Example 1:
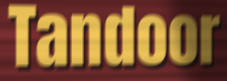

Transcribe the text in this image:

Tandoor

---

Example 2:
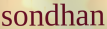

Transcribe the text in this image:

sondhan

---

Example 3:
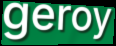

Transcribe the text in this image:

geroy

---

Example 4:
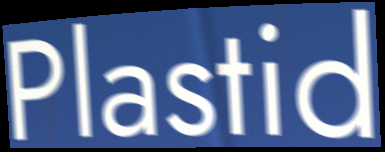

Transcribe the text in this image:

Plastid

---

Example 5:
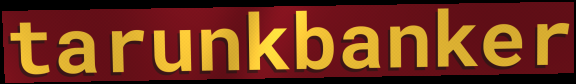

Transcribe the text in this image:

tarunkbanker